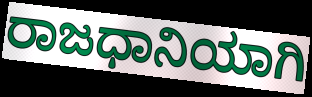
ರಾಜಧಾನಿಯಾಗಿ